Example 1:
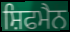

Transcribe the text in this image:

ਸ਼ਿਫਮੈਨ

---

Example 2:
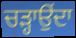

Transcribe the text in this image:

ਚੜ੍ਹਾਉਂਦਾ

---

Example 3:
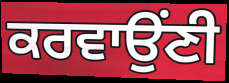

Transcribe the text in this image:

ਕਰਵਾਉਂਣੀ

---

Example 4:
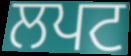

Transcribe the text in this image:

ਲਪਟ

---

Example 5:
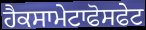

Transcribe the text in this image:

ਹੈਕਸਾਮੇਟਾਫੋਸਫੇਟ